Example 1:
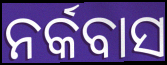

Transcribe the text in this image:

ନର୍କବାସ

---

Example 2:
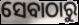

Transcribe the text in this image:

ସେବାଠାରୁ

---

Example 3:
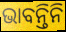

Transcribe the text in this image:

ଭାବନ୍ତିନି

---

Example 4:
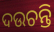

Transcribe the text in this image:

ଦଉଚନ୍ତି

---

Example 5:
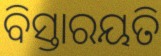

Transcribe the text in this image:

ବିସ୍ତାରୟତି